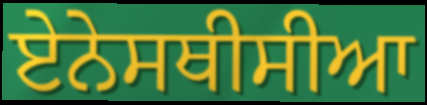
ਏਨੇਸਥੀਸੀਆ